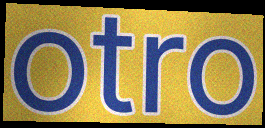
otro